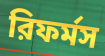
রিফর্মস